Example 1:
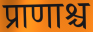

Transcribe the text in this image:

प्राणाश्च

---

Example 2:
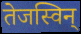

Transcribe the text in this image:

तेजस्विन्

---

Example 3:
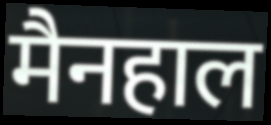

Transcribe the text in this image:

मैनहाल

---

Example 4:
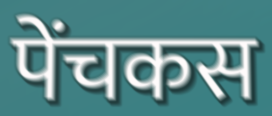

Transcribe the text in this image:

पेंचकस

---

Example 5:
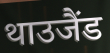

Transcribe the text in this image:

थाउजैंड